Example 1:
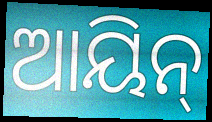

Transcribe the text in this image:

ଆୟିନ୍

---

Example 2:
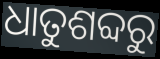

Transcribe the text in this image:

ଧାତୁଶବ୍ଦରୁ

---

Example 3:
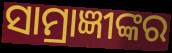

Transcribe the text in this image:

ସାମ୍ରାଜ୍ଞୀଙ୍କର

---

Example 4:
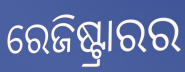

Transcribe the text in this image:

ରେଜିଷ୍ଟ୍ରାରର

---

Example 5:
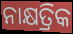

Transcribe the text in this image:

ନାକ୍ଷତ୍ରିକ